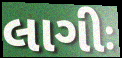
લાગીઃ